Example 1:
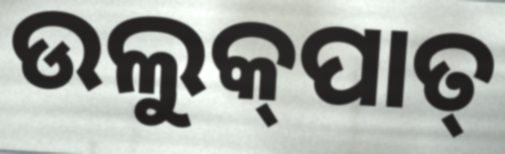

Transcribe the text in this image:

ଉଲୁକ୍‌ପାତ୍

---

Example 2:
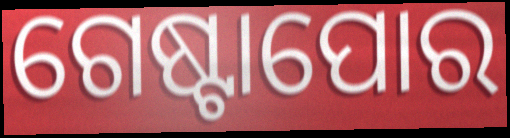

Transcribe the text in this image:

ଗେଷ୍ଟାପୋର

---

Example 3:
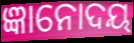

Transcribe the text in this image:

ଜ୍ଞାନୋଦୟ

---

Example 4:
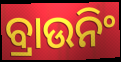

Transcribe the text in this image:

ବ୍ରାଉନିଂ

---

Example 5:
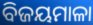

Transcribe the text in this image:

ବିଜୟମାଳା